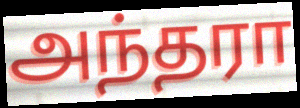
அந்தரா